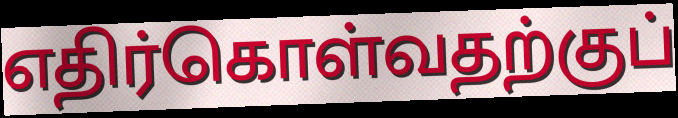
எதிர்கொள்வதற்குப்